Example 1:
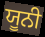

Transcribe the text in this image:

ਯੂਨੀ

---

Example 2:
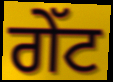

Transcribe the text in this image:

ਗੇੱਟ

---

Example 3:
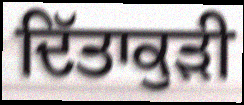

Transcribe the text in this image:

ਦਿੱਤਾਕੁੜੀ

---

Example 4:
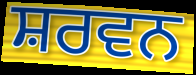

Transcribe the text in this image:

ਸ਼ਰਵਨ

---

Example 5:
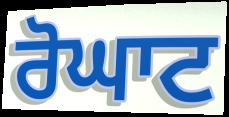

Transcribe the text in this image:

ਰੋਘਾਟ